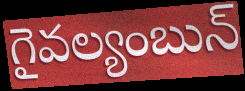
గైవల్యంబున్